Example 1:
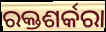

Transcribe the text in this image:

ରକ୍ତଶର୍କରା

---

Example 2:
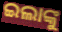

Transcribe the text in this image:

ଇଲାଙ୍କୁ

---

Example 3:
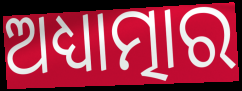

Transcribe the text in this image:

ଅଧ୍ୟାତ୍ମାର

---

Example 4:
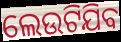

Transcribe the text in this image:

ଲେଉଟିଯିବ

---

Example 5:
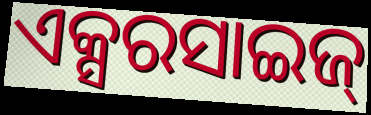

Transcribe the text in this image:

ଏକ୍ସରସାଇଜ୍